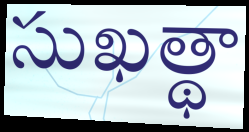
సుఖత్థా